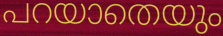
പറയാതെയും